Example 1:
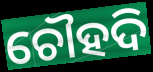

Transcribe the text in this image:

ଚୌହଦି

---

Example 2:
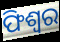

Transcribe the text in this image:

ଫିଶ୍ୱର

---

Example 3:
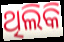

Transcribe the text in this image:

ଥିଲିକି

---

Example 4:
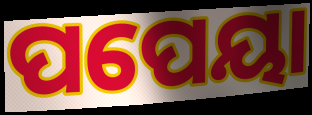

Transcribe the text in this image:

ପପେୟା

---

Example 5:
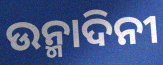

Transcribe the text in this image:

ଉନ୍ମାଦିନୀ